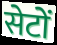
सेटों